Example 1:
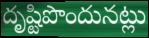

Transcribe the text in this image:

దృష్టిపొందునట్లు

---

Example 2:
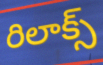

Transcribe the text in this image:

రిలాక్స్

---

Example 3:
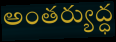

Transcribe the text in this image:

అంతర్యుద్ధ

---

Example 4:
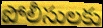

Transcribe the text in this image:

పోలీసులకు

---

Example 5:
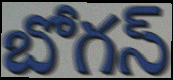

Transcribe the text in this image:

బోగస్